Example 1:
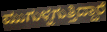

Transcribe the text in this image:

ಮುಗುಳ್ನಗುತ್ತಿದ್ದಾರೆ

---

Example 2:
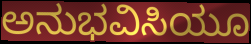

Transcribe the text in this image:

ಅನುಭವಿಸಿಯೂ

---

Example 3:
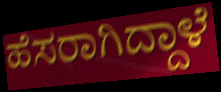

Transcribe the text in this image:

ಹೆಸರಾಗಿದ್ದಾಳೆ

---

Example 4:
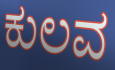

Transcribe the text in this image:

ಕುಲವ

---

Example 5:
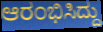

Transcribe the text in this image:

ಆರಂಭಿಸಿದ್ದು